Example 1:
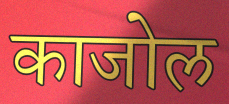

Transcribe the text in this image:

काजोल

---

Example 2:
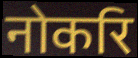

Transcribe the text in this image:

नोकरि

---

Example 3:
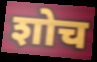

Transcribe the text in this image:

शोच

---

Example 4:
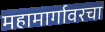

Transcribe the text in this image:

महामार्गावरचा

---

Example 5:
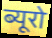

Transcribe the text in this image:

ब्यूरो